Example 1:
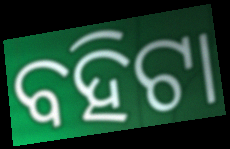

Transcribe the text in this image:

ବହିଟା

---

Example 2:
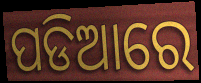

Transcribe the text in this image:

ପଡିଆରେ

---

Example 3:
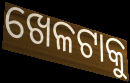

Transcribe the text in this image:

ଖେଳଟାକୁ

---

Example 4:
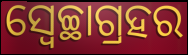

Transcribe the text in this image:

ସ୍ବେଚ୍ଛାଗ୍ରହର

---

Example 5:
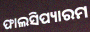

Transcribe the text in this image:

ଫାଲସିପ୍ୟାରମ